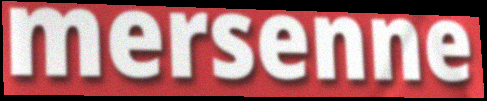
mersenne